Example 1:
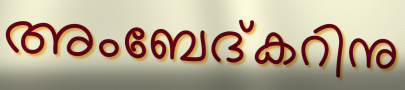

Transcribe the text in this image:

അംബേദ്കറിനു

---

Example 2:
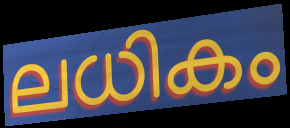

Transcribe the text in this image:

ലധികം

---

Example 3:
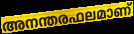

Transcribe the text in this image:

അനന്തരഫലമാണ്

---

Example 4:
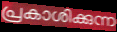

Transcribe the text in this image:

പ്രകാശിക്കുന്ന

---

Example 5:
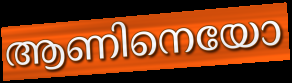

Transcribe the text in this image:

ആണിനെയോ